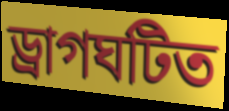
ড্রাগঘটিত